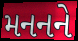
મનનને